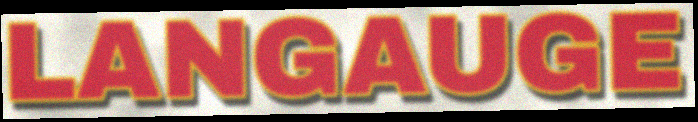
LANGAUGE